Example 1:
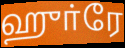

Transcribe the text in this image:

ஹுர்ரே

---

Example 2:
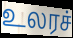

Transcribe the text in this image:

உலரச்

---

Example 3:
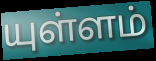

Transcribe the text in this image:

யுள்ளம்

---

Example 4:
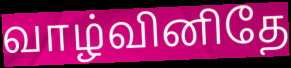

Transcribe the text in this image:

வாழ்வினிதே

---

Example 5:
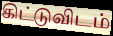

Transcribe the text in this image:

கிட்டுவிடம்